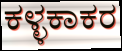
ಕಳ್ಳಕಾಕರ